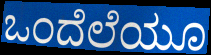
ಒಂದೆಲೆಯೂ